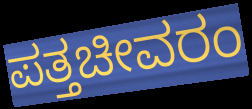
ಪತ್ತಚೀವರಂ